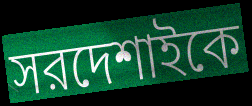
সরদেশাইকে